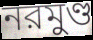
নরমুণ্ড